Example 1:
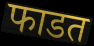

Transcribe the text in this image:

फाडत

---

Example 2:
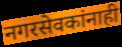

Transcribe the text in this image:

नगरसेवकांनाही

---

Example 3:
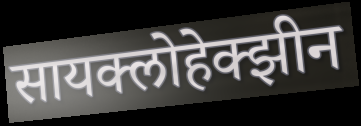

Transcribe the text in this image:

सायक्लोहेक्झीन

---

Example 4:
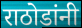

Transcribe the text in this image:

राठोडांनी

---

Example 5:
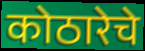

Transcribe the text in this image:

कोठारेचे